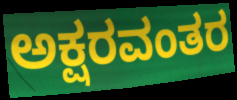
ಅಕ್ಷರವಂತರ